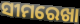
ସୀମରେଖା